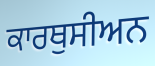
ਕਾਰਥੁਸੀਅਨ